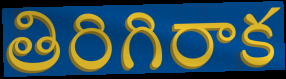
తిరిగిరాక